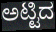
ಅಟ್ಟಿದ